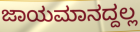
ಜಾಯಮಾನದ್ದಲ್ಲ